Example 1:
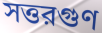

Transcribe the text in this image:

সত্তরগুণ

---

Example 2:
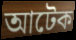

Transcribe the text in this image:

আটেক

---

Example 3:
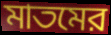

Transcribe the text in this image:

মাতমের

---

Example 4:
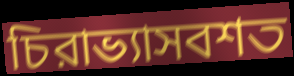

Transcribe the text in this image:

চিরাভ্যাসবশত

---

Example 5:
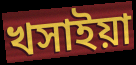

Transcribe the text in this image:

খসাইয়া